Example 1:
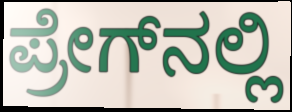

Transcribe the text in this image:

ಪ್ರೇಗ್‌ನಲ್ಲಿ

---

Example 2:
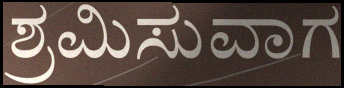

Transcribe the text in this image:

ಶ್ರಮಿಸುವಾಗ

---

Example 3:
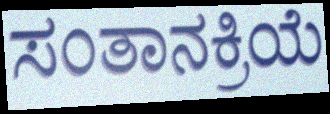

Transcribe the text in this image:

ಸಂತಾನಕ್ರಿಯೆ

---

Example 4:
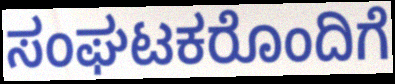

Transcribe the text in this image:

ಸಂಘಟಕರೊಂದಿಗೆ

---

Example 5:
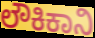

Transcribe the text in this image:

ಲೌಕಿಕಾನಿ